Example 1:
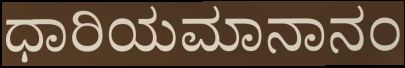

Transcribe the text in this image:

ಧಾರಿಯಮಾನಾನಂ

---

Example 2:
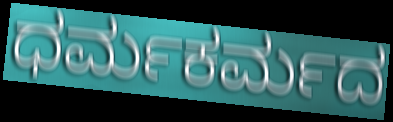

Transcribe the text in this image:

ಧರ್ಮಕರ್ಮದ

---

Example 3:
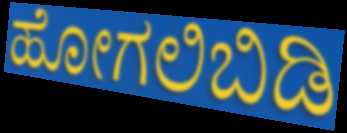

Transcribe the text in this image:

ಹೋಗಲಿಬಿಡಿ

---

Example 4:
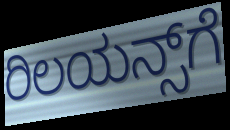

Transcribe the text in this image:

ರಿಲಯನ್ಸ್‌ಗೆ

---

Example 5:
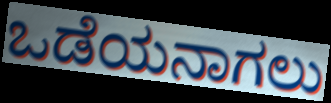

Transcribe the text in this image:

ಒಡೆಯನಾಗಲು